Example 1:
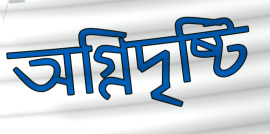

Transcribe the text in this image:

অগ্নিদৃষ্টি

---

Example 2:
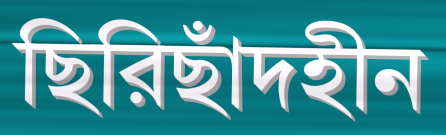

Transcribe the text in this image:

ছিরিছাঁদহীন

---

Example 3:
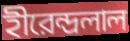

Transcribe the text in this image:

হীরেন্দ্রলাল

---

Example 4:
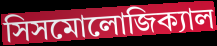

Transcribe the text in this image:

সিসমোলোজিক্যাল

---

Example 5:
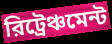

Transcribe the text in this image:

রিট্রেঞ্চমেন্ট